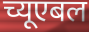
च्यूएबल